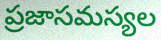
ప్రజాసమస్యల